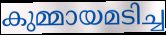
കുമ്മായമടിച്ച